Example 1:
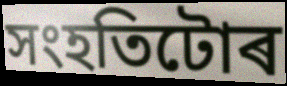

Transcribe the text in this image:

সংহতিটোৰ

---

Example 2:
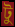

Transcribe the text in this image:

টু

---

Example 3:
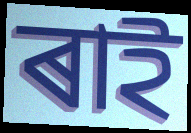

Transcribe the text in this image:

ৰাই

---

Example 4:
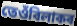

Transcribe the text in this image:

তেওঁবিলাকৰ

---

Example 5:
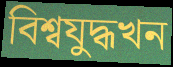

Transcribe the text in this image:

বিশ্বযুদ্ধখন